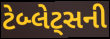
ટેબ્લેટ્સની